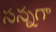
సన్నగా